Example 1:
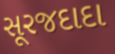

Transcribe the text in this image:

સૂરજદાદા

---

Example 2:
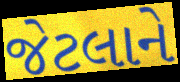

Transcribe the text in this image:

જેટલાને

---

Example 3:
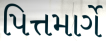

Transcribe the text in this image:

પિત્તમાર્ગે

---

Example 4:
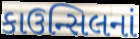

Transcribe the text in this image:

કાઉન્સિલનાં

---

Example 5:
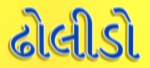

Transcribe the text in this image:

ઢોલીડો